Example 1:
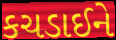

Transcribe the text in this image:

કચડાઈને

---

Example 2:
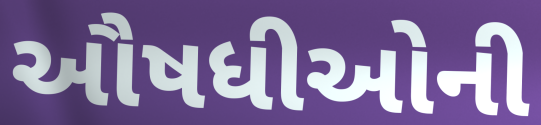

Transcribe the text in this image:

ઔષધીઓની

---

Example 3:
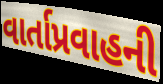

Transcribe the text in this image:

વાર્તાપ્રવાહની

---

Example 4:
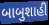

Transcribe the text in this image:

બાબુશાહી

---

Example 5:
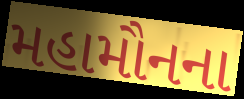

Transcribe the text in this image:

મહામૌનના